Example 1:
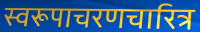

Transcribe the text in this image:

स्वरूपाचरणचारित्र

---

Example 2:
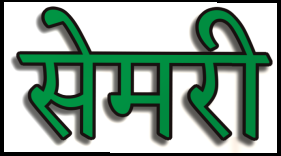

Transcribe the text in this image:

सेमरी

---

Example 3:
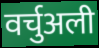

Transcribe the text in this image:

वर्चुअली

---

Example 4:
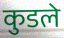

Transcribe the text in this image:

कुडले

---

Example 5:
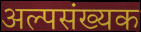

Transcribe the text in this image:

अल्पसंख्यक